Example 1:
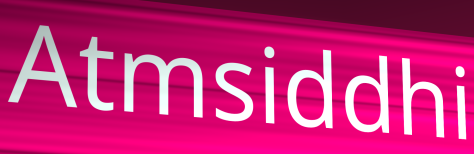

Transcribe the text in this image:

Atmsiddhi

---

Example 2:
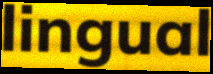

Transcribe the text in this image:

lingual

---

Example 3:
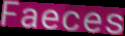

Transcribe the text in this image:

Faeces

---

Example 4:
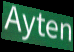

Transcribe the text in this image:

Ayten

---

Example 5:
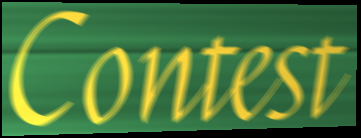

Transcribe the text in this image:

Contest